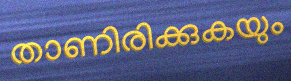
താണിരിക്കുകയും